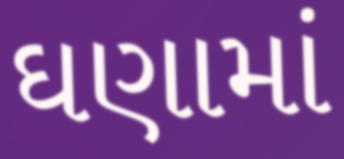
ઘણામાં